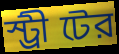
স্ট্রীটের